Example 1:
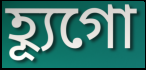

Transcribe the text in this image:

হ্যূগো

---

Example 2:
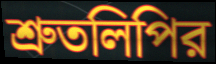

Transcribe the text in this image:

শ্রুতলিপির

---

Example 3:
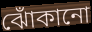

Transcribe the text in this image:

ঝোঁকানো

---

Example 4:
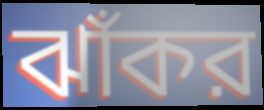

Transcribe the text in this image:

ঝাঁকর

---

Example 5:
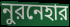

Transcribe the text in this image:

নুরনেহার